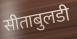
सीताबुलडी